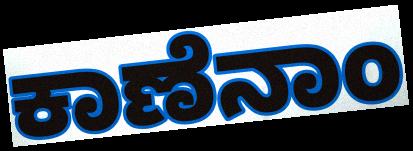
ಕಾಣೆನಾಂ